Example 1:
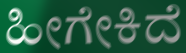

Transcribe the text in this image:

ಹೀಗೇಕಿದೆ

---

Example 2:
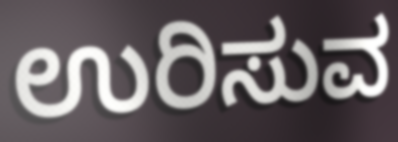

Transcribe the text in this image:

ಉರಿಸುವ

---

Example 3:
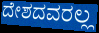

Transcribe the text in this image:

ದೇಶದವರಲ್ಲ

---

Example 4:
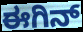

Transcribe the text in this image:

ಈಗಿನ್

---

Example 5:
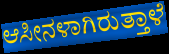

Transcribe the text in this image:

ಆಸೀನಳಾಗಿರುತ್ತಾಳೆ